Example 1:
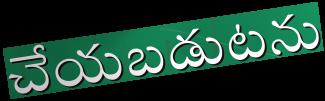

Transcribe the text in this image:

చేయబడుటను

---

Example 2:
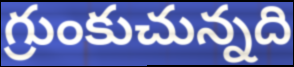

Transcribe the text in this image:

గ్రుంకుచున్నది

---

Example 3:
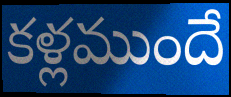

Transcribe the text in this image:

కళ్లముందే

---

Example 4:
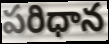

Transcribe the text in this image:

పరిధాన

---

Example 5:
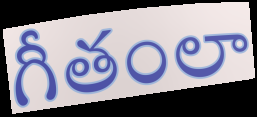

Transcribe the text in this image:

గీతంలా